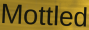
Mottled